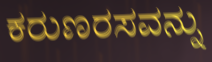
ಕರುಣರಸವನ್ನು